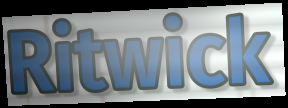
Ritwick